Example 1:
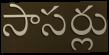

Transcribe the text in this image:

సాసర్లు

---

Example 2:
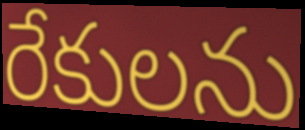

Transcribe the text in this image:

రేకులను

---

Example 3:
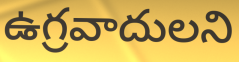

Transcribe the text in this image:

ఉగ్రవాదులని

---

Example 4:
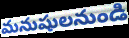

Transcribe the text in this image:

మనుషులనుండి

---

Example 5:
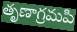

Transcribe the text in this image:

తృణాగ్రమపి